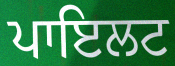
ਪਾਇਲਟ